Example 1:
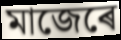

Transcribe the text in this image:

মাজেৰে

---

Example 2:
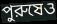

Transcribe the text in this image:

পুৰুষেও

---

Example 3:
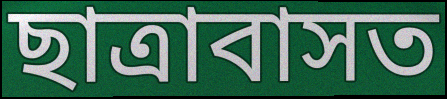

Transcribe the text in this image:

ছাত্ৰাবাসত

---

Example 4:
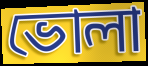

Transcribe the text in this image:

ভোলা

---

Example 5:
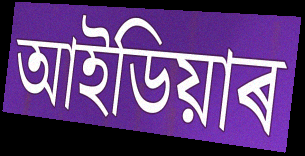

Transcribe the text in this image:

আইডিয়াৰ